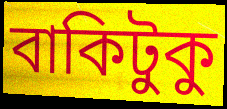
বাকিটুকু